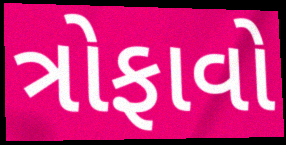
ત્રોફાવો